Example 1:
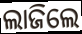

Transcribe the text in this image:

ଲାଜିଲେ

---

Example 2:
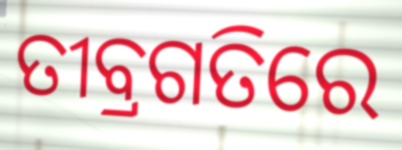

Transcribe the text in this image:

ତୀବ୍ରଗତିରେ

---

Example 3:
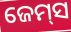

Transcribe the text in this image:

ଜେମ୍‌ସ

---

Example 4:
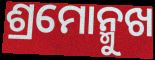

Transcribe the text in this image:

ଶ୍ରମୋନ୍ମୁଖ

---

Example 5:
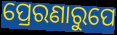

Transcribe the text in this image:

ପ୍ରେରଣାରୁପେ